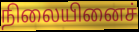
நிலையினைச்